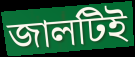
জালটিই